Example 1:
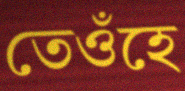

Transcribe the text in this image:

তেওঁহে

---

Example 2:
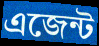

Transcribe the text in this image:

এজেন্ট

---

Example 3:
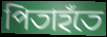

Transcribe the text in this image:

পিতাহঁতে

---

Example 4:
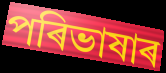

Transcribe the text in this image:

পৰিভাষাৰ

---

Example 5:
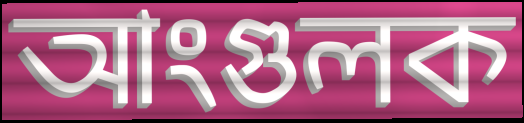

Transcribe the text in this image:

আংগুলক